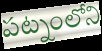
పట్నంలోని